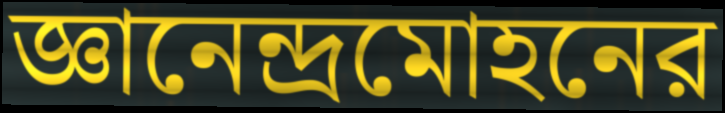
জ্ঞানেন্দ্রমোহনের